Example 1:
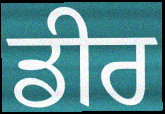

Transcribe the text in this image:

ਡੀਰ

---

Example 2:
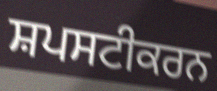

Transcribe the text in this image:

ਸ਼ਪਸਟੀਕਰਨ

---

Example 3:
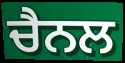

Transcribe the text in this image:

ਚੈਨਲ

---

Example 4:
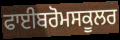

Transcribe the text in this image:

ਫਾਈਬਰੋਮਸਕੂਲਰ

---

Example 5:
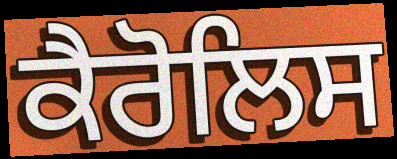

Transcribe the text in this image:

ਕੈਰੋਲਿਸ